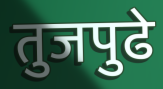
तुजपुढे